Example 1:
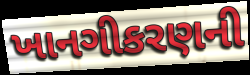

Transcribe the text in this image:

ખાનગીકરણની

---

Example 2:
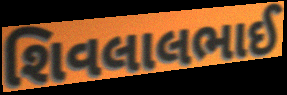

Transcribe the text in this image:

શિવલાલભાઈ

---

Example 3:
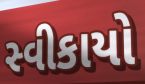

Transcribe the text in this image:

સ્વીકાયો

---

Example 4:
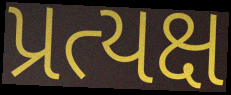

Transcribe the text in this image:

પ્રત્યક્ષ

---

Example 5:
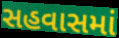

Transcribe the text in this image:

સહવાસમાં